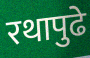
रथापुढे